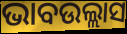
ଭାବଉଲ୍ଲାସ